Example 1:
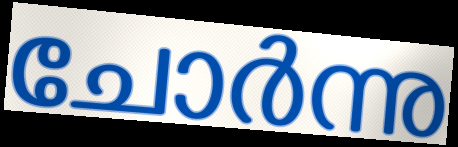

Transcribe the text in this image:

ചോർന്നു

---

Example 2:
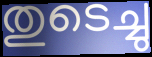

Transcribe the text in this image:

തുടെച്ചു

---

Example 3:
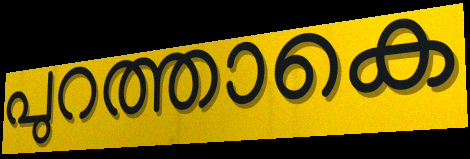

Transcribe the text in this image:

പുറത്താകെ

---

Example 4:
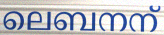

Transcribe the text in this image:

ലെബനന്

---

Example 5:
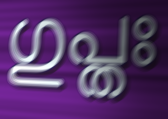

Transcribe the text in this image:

ഗുപ്തഃ